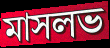
মাসলভ